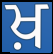
ਖ਼